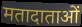
मतादाताओं